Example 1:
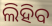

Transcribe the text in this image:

ଲିହିବ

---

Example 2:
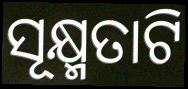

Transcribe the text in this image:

ସୂକ୍ଷ୍ମତାଟି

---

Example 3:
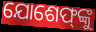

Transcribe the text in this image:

ଯୋଶେଫ୍‌ଙ୍କୁ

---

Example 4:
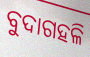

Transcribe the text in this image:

ବୁଦାଗହଳି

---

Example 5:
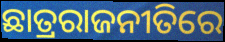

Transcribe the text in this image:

ଛାତ୍ରରାଜନୀତିରେ